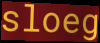
sloeg